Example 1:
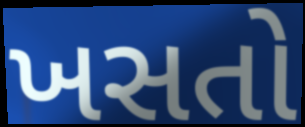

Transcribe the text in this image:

ખસતો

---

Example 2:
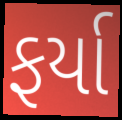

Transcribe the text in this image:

ફર્યા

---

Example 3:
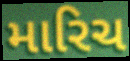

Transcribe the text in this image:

મારિચ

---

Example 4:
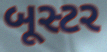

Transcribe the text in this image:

બૂસ્ટર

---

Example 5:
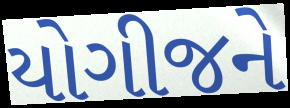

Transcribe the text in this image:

યોગીજને